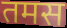
तमस